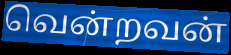
வென்றவன்